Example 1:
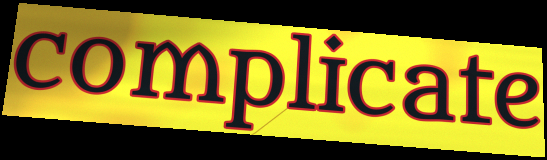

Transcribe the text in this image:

complicate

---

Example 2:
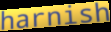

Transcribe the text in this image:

harnish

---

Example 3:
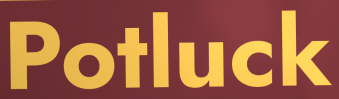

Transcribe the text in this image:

Potluck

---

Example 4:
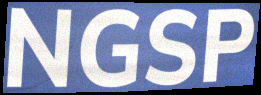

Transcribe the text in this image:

NGSP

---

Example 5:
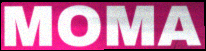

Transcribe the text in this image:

MOMA